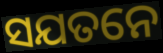
ସଯତନେ